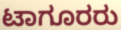
ಟಾಗೂರರು